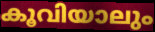
കൂവിയാലും